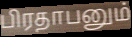
பிரதாபனும்